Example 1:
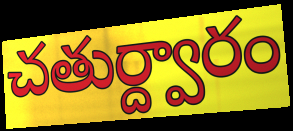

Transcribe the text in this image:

చతుర్ద్వారం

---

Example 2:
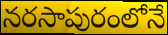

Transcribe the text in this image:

నరసాపురంలోనే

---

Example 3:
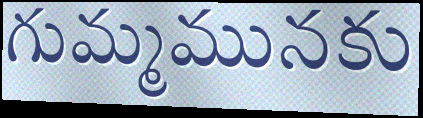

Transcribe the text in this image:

గుమ్మమునకు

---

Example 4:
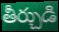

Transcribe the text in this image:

తీర్చుడి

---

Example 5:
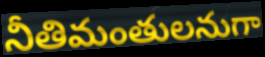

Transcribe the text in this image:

నీతిమంతులనుగా